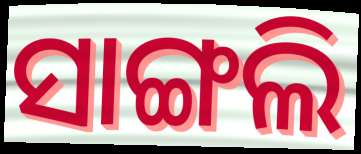
ସାଙ୍ଗଲି